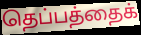
தெப்பத்தைக்